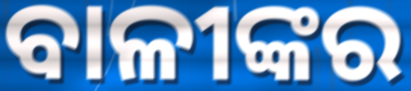
ବାଳୀଙ୍କର